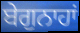
ਬੇਗੁਨਾਹਾਂ